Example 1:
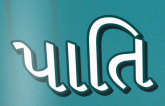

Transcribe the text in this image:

પાતિ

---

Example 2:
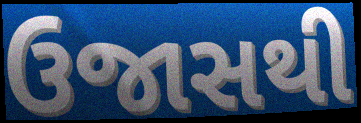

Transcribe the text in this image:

ઉજાસથી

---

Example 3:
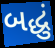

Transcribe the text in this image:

બદ્ધું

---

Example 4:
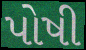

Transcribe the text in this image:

પોષી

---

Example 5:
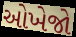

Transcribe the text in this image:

ઓખેજો